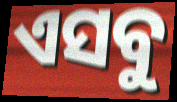
ଏସବୁ